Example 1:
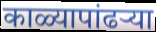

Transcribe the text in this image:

काळ्यापांढऱ्या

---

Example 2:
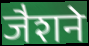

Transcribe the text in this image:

जैशने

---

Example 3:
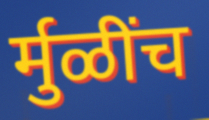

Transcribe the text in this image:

र्मुळींच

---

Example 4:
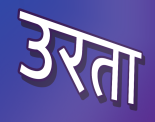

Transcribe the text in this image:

उरता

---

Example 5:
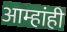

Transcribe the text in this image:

आम्हांही